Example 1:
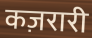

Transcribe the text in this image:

कज़रारी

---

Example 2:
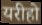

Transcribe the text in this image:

यरीहो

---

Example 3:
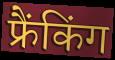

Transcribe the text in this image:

फ्रैंकिंग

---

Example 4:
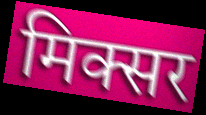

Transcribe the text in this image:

मिक्सर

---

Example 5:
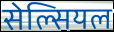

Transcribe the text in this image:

सेल्सियल